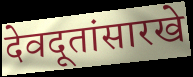
देवदूतांसारखे